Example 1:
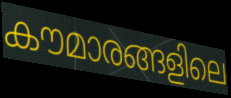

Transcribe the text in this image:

കൗമാരങ്ങളിലെ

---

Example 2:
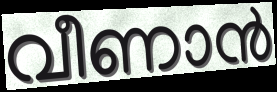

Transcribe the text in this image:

വീണാൻ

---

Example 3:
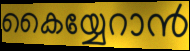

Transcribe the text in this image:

കൈയ്യേറാൻ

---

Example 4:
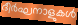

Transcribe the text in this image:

ദീർഘനാളുകൾ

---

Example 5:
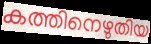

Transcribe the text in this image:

കത്തിനെഴുതിയ